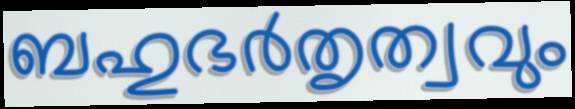
ബഹുഭർതൃത്വവും